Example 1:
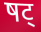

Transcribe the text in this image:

षट्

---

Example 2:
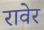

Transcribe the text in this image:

रावेर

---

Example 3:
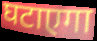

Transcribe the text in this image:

घटाएगा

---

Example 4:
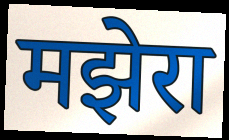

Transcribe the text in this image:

मझेरा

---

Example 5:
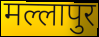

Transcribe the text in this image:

मल्लापुर